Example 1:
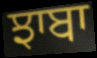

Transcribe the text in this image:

ਝਾਬਾ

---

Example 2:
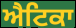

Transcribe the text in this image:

ਐਟਿਕਾ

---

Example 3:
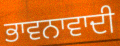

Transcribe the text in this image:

ਭਾਵਨਾਵਾਦੀ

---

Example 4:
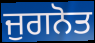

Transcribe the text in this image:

ਜੁਗਨੋਤ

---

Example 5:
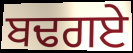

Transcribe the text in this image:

ਬਢਗਏ